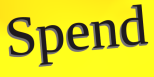
Spend